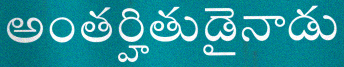
అంతర్హితుడైనాడు